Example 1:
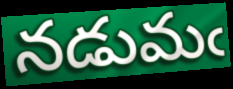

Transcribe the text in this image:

నడుమఁ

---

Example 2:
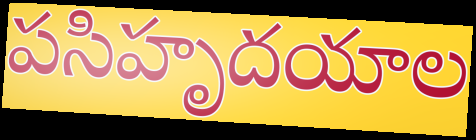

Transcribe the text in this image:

పసిహృదయాల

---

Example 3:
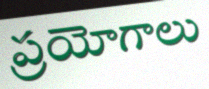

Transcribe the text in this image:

ప్రయోగాలు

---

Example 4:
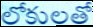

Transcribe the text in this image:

లోకులతో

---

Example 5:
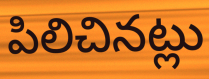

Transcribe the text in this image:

పిలిచినట్లు